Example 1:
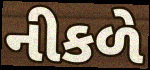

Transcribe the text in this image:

નીકળે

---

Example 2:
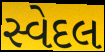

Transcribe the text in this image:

સ્વેદલ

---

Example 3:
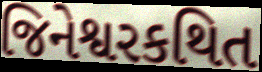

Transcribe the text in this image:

જિનેશ્વરકથિત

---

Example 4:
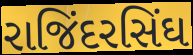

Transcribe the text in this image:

રાજિંદરસિંઘ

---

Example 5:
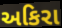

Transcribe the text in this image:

અકિરા